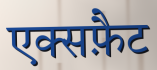
एक्सफ़ैट